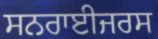
ਸਨਰਾਈਜਰਸ